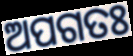
ଅପଗତଃ